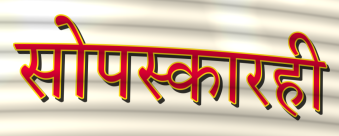
सोपस्कारही